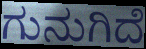
ಗುನುಗಿದೆ